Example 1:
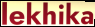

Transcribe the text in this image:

lekhika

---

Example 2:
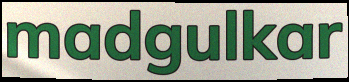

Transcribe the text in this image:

madgulkar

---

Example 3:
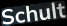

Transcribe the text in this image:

Schult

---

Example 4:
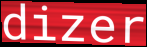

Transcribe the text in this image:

dizer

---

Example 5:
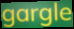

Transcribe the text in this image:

gargle